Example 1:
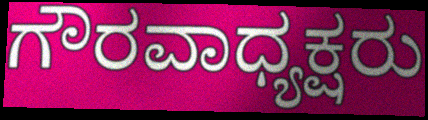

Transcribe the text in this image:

ಗೌರವಾಧ್ಯಕ್ಷರು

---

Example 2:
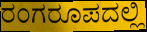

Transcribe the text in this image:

ರಂಗರೂಪದಲ್ಲಿ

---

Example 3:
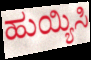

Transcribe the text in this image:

ಹುಯ್ಯಿಸಿ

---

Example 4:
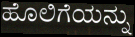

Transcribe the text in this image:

ಹೊಲಿಗೆಯನ್ನು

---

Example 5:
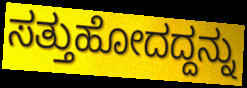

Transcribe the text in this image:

ಸತ್ತುಹೋದದ್ದನ್ನು